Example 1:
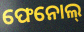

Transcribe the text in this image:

ଫେନୋଲ୍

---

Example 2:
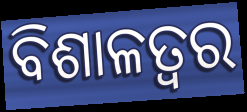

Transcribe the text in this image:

ବିଶାଳତ୍ୱର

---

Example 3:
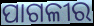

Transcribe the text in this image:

ପାଗଳୀର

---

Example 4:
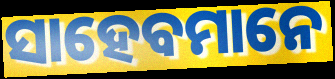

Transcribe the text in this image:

ସାହେବମାନେ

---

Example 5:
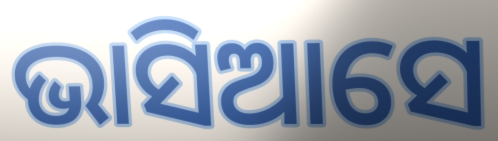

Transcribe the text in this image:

ଭାସିଆସେ